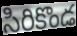
సిరికొండ